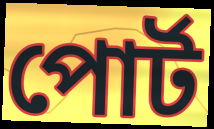
পোর্ট